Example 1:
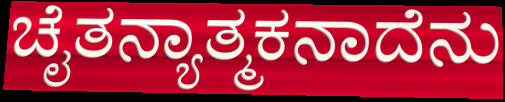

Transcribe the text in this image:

ಚೈತನ್ಯಾತ್ಮಕನಾದೆನು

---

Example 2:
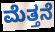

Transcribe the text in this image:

ಮೆತ್ತನೆ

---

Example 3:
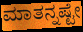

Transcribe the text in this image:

ಮಾತನ್ನಷ್ಟೇ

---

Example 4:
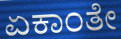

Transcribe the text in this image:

ಏಕಾಂತೇ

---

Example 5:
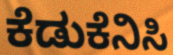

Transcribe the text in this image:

ಕೆಡುಕೆನಿಸಿ